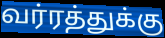
வர்ரத்துக்கு